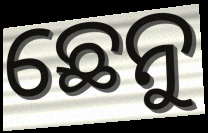
ଛେନୁ